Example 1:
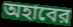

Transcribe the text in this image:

অহাবের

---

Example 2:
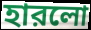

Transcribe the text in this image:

হারলো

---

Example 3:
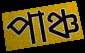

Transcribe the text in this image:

পাঞ্চ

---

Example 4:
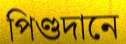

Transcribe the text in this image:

পিণ্ডদানে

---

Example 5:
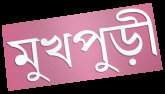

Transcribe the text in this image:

মুখপুড়ী